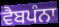
ਵੈਬਪੰਨਾ